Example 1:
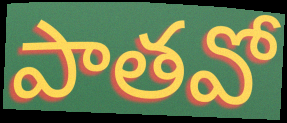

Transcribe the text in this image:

పాతవో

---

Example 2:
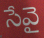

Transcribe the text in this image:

సేవై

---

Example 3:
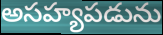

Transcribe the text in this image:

అసహ్యపడును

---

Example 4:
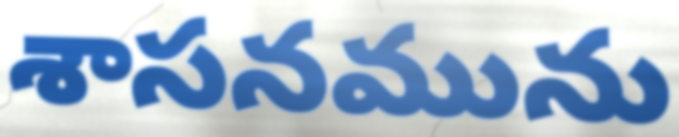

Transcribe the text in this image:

శాసనమును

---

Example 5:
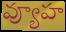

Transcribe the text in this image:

వ్యూహ